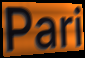
Pari